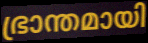
ഭ്രാന്തമായി